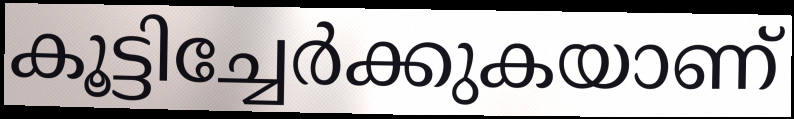
കൂട്ടിച്ചേർക്കുകയാണ്